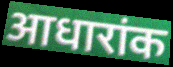
आधारांक